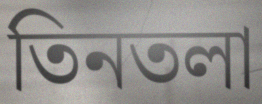
তিনতলা